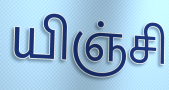
யிஞ்சி